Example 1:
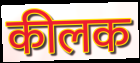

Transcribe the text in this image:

कीलक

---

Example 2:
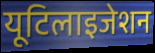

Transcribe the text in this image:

यूटिलाइजेशन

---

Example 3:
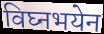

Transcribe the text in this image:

विघ्नभयेन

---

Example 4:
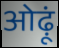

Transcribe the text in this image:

ओढ़ूं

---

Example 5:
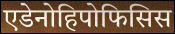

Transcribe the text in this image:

एडेनोहिपोफिसिस